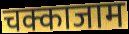
चक्काजाम